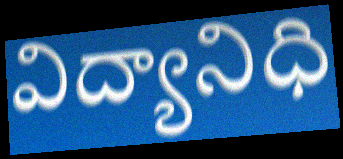
విద్యానిధి